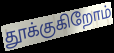
தூக்குகிறோம்